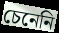
চেনেনি